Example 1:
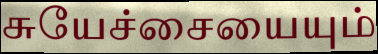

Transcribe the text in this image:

சுயேச்சையையும்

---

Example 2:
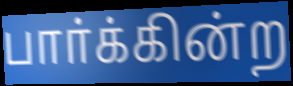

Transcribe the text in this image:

பார்க்கின்ற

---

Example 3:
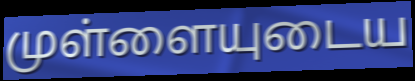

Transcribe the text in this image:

முள்ளையுடைய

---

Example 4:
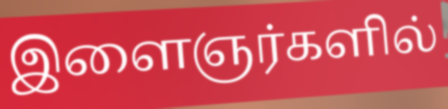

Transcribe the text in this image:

இளைஞர்களில்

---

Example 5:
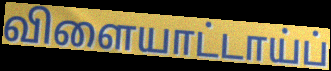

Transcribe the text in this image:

விளையாட்டாய்ப்